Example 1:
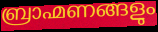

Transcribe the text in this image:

ബ്രാഹ്മണങ്ങളും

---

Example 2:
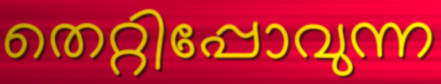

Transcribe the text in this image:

തെറ്റിപ്പോവുന്ന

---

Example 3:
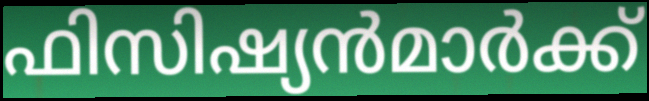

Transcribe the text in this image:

ഫിസിഷ്യൻമാർക്ക്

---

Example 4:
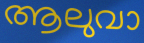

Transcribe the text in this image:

ആലുവാ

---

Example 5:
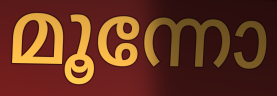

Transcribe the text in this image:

മൂന്നോ